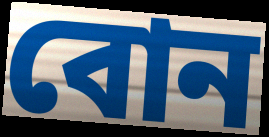
বোন